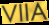
VIIA